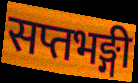
सप्तभङ्गी